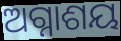
ଅଗ୍ନାଶୟ